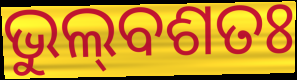
ଭୁଲ୍‌ବଶତଃ